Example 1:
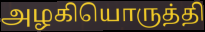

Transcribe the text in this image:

அழகியொருத்தி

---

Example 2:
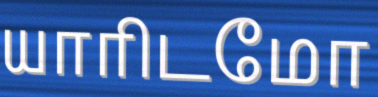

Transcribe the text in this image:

யாரிடமோ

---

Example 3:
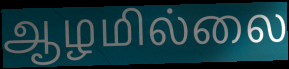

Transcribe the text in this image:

ஆழமில்லை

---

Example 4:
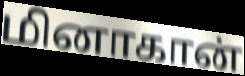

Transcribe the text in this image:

மினாகான்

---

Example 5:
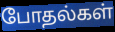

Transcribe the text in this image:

போதல்கள்